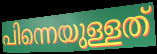
പിന്നെയുള്ളത്